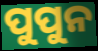
ପୁପୁନ